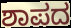
ಶಾಪದ